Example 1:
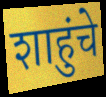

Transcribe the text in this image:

शाहुंचे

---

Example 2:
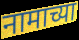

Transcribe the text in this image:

नामाच्या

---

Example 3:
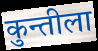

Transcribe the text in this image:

कुन्तीला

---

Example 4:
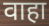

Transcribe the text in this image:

वाहा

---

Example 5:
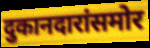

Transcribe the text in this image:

दुकानदारांसमोर